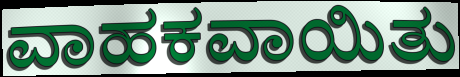
ವಾಹಕವಾಯಿತು